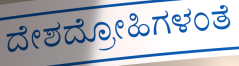
ದೇಶದ್ರೋಹಿಗಳಂತೆ